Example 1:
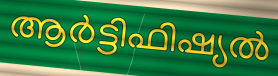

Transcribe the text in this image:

ആർട്ടിഫിഷ്യൽ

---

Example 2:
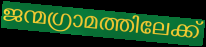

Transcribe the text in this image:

ജന്മഗ്രാമത്തിലേക്ക്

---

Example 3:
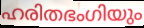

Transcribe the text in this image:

ഹരിതഭംഗിയും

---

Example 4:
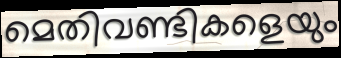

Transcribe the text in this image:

മെതിവണ്ടികളെയും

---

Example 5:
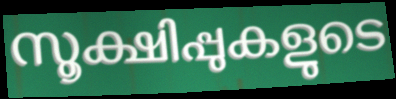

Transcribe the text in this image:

സൂക്ഷിപ്പുകളുടെ